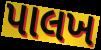
પાલખ